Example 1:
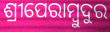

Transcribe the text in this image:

ଶ୍ରୀପେରାମ୍ବୁଦୁର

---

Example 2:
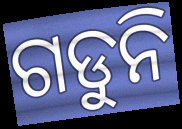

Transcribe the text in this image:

ଗଡୁନି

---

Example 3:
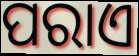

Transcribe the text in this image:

ପରାଏ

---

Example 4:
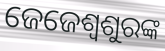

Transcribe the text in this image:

ଜେଜେଶ୍ୱଶୁରଙ୍କ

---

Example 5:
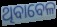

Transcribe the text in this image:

ଥିବାବେଳ